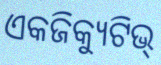
ଏକଜିକ୍ୟୁଟିଭ୍